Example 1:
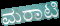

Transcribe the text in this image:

ಮರಾಟಿ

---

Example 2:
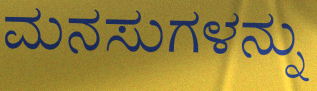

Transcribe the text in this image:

ಮನಸುಗಳನ್ನು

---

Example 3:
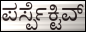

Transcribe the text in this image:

ಪರ್ಸ್ಪೆಕ್ಟಿವ್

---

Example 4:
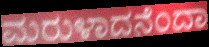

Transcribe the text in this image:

ಮರುಳಾದನೆಂದಾ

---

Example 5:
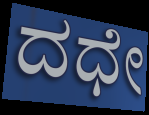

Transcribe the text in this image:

ದಧೇ